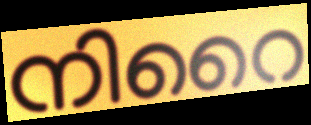
നിറൈ